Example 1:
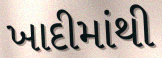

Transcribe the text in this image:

ખાદીમાંથી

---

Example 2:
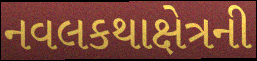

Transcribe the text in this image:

નવલકથાક્ષેત્રની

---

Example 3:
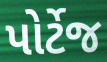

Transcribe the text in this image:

પોર્ટેજ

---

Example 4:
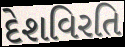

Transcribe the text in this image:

દેશવિરતિ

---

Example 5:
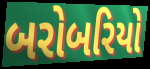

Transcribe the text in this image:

બરોબરિયો